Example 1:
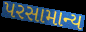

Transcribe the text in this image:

પરસામાન્ય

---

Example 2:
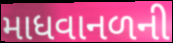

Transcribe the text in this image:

માધવાનળની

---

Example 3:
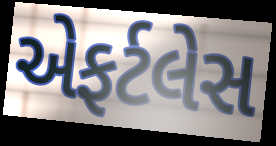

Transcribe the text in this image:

એફર્ટલેસ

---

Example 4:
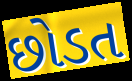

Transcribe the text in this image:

છોડત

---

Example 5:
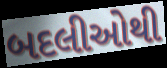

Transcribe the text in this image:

બદલીઓથી